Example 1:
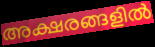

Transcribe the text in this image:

അക്ഷരങ്ങളിൽ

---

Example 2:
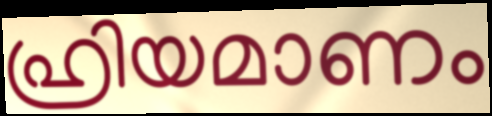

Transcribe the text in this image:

ഹ്രിയമാണം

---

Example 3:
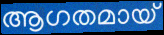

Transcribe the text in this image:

ആഗതമായ്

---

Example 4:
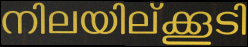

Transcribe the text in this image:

നിലയില്ക്കൂടി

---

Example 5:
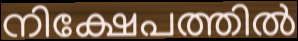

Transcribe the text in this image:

നിക്ഷേപത്തിൽ